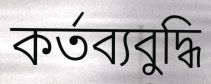
কর্তব্যবুদ্ধি